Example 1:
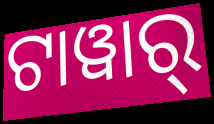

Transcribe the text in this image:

ଟାୱାର୍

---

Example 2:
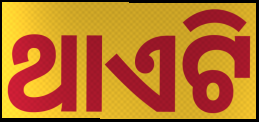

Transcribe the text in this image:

ଥାଏଟି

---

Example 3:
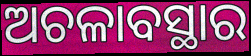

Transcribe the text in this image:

ଅଚଳାବସ୍ଥାର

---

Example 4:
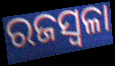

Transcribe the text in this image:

ରଜସ୍ବଳା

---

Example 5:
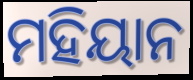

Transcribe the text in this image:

ମହିୟାନ